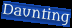
Daunting